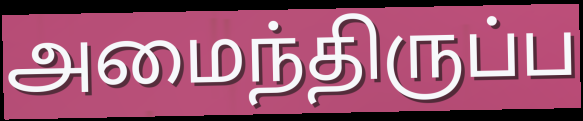
அமைந்திருப்ப